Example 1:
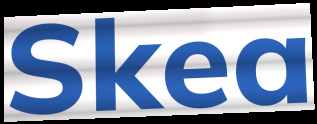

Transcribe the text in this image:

Skea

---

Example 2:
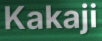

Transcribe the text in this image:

Kakaji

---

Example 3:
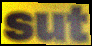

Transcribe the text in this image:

sut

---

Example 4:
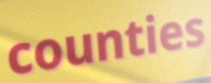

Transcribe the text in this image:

counties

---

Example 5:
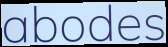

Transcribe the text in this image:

abodes